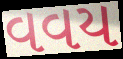
વવય